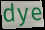
dye